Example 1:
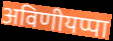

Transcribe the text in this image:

अविणीयप्पा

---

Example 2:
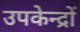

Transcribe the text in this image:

उपकेन्द्रों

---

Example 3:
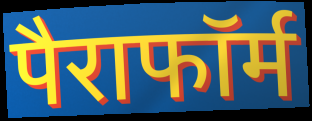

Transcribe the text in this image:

पैराफॉर्म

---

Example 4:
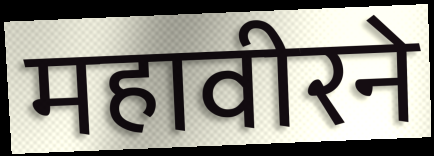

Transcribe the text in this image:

महावीरने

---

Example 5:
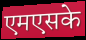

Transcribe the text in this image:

एमएसके